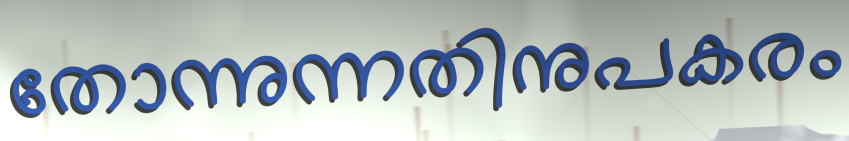
തോന്നുന്നതിനുപകരം